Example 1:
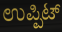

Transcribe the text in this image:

ಉಪ್ಪಿಟ್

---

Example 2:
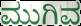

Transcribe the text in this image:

ಮುಗಿವ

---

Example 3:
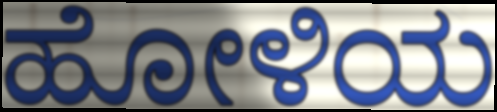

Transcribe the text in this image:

ಹೋಳಿಯ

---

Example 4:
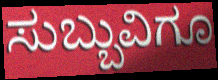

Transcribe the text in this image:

ಸುಬ್ಬುವಿಗೂ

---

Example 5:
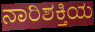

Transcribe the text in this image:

ನಾರಿಶಕ್ತಿಯ